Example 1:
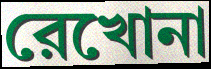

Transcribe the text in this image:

রেখোনা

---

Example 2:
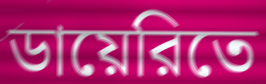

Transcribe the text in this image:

ডায়েরিতে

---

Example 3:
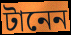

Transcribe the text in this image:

টানেন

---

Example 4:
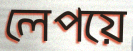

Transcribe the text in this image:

লেপয়ে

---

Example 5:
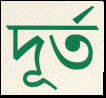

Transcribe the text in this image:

দূর্ত